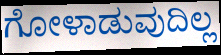
ಗೋಳಾಡುವುದಿಲ್ಲ